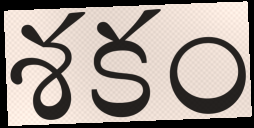
శకం